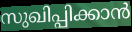
സുഖിപ്പിക്കാൻ